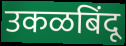
उकळबिंदू